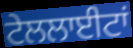
ਟੇਲਲਾਈਟਾਂ